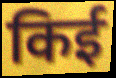
किई